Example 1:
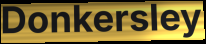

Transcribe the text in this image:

Donkersley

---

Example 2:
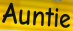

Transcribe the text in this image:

Auntie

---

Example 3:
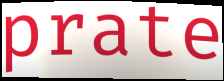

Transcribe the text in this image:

prate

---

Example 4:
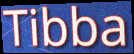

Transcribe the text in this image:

Tibba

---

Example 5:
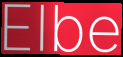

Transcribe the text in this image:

Elbe